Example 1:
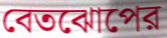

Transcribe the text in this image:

বেতঝোপের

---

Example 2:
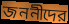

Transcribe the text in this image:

জননীদের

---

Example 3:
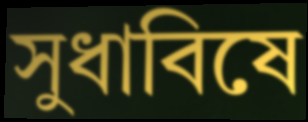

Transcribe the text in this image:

সুধাবিষে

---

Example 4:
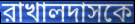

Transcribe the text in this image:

রাখালদাসকে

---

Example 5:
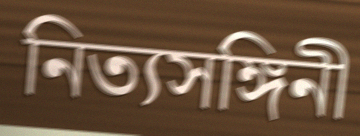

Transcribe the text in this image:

নিত্যসঙ্গিনী